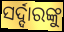
ସର୍ଦ୍ଦାରଙ୍କୁ